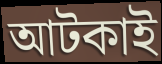
আটকাই